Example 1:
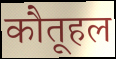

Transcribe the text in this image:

कौतूहल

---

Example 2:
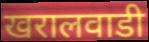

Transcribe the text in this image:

खरालवाडी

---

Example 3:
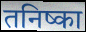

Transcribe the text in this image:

तनिष्का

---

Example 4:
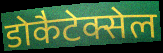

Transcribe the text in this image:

डोकैटेक्सेल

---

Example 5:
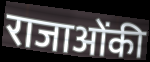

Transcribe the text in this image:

राजाओंकी